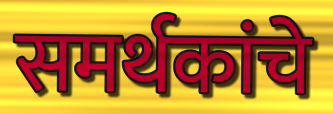
समर्थकांचे